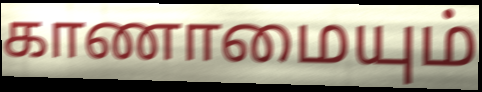
காணாமையும்